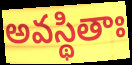
అవస్థితాః